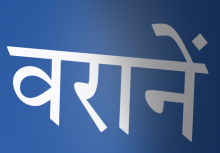
वरानें